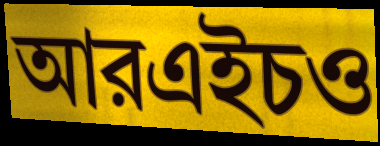
আরএইচও